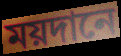
ময়দানে